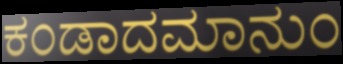
ಕಂಡಾದಮಾನುಂ